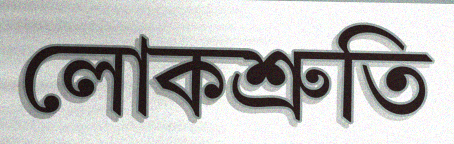
লোকশ্ৰুতি